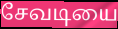
சேவடியை